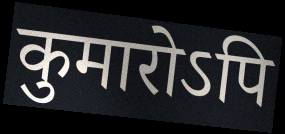
कुमारोऽपि